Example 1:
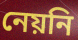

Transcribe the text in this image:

নেয়নি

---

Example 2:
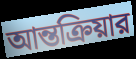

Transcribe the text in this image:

আন্তক্রিয়ার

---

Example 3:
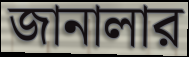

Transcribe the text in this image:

জানালার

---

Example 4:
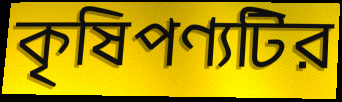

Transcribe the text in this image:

কৃষিপণ্যটির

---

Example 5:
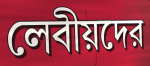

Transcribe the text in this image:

লেবীয়দের